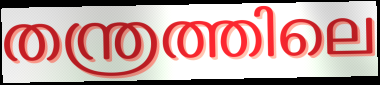
തന്ത്രത്തിലെ